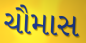
ચૌમાસ